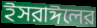
ইসরাঈলের